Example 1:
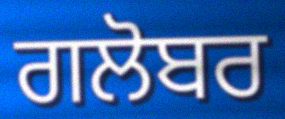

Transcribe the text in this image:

ਗਲੋਬਰ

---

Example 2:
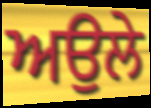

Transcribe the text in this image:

ਅਉਲੇ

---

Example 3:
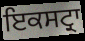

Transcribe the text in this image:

ਇਕਸਟ੍ਰਾ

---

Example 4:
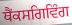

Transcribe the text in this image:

ਥੈਂਕਸਗਿਵਿੰਗ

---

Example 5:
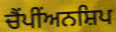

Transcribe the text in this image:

ਚੈਂਪੀਂਅਨਸ਼ਿਪ